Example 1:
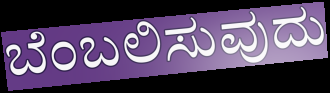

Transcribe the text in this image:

ಬೆಂಬಲಿಸುವುದು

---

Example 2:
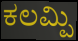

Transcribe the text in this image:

ಕಲಮ್ಪಿ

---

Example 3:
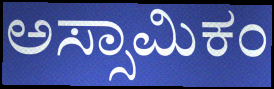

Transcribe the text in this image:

ಅಸ್ಸಾಮಿಕಂ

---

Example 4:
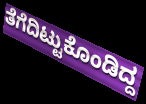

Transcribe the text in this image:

ತೆಗೆದಿಟ್ಟುಕೊಂಡಿದ್ದ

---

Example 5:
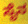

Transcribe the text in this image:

ಸೈನ